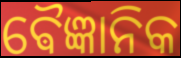
ଵୈଜ୍ଞାନିକ